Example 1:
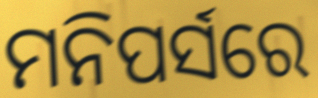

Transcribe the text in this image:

ମନିପର୍ସରେ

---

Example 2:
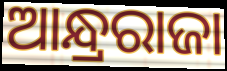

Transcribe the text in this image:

ଆନ୍ଧ୍ରରାଜା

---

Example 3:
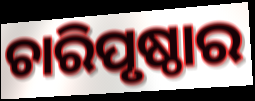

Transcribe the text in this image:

ଚାରିପୃଷ୍ଠାର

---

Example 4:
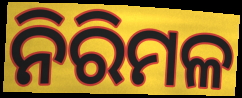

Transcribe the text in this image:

ନିରିମଳ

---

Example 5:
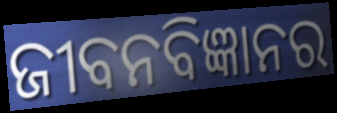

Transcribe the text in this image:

ଜୀବନବିଜ୍ଞାନର